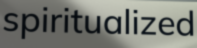
spiritualized